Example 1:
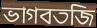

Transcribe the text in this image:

ভাগবতজি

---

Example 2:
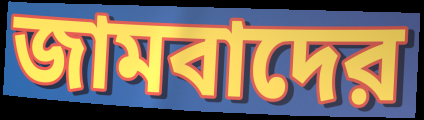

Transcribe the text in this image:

জামবাদের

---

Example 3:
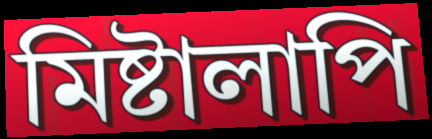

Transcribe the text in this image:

মিষ্টালাপি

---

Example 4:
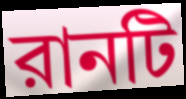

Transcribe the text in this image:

রানটি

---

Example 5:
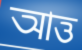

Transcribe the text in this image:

আত্ত